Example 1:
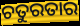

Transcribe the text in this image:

ଚତୁରତାର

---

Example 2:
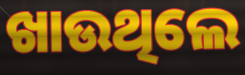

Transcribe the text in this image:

ଖାଉଥିଲେ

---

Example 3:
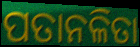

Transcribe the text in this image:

ପତାନଳିତା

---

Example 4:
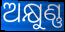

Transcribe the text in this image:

ଅକ୍ଷୁଣ୍ଣ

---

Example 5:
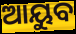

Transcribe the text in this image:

ଆୟୁବ